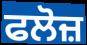
ਫਲੋਜ਼